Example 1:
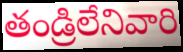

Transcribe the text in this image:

తండ్రిలేనివారి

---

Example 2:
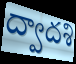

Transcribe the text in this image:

ద్వాదశి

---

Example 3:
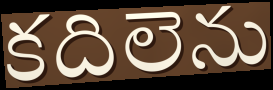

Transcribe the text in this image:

కదిలెను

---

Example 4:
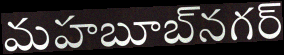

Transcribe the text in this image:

మహబూబ్‌నగర్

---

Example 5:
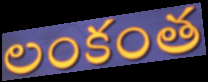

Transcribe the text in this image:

లంకంత